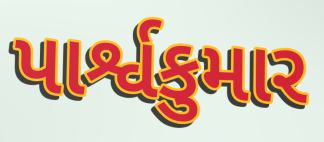
પાર્શ્વકુમાર